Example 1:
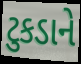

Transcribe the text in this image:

ટુકડાને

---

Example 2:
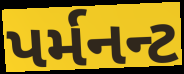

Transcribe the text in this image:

પર્મનન્ટ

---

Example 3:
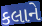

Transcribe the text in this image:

કલાને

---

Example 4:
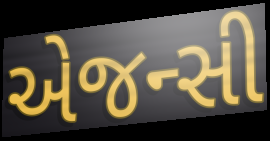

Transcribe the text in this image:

એજન્સી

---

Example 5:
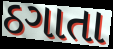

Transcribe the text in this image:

ઠગાતા